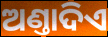
ଅଣ୍ତାଦିଏ